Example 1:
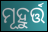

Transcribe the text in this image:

ମୂହୁର୍ତ୍ତ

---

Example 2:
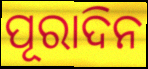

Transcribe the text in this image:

ପୂରାଦିନ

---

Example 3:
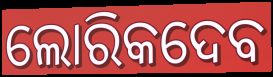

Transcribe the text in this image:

ଲୋରିକଦେବ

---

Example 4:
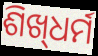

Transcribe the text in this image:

ଶିଖ୍‌ଧର୍ମ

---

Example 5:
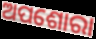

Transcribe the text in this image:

ଅପଶୋରା